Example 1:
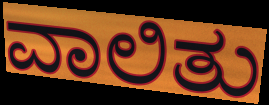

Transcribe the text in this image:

ವಾಲಿತು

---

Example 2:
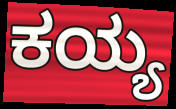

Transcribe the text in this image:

ಕಯ್ಯ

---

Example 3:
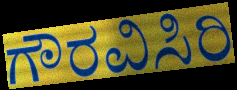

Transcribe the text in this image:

ಗೌರವಿಸಿರಿ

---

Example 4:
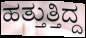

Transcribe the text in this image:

ಹತ್ತುತ್ತಿದ್ದ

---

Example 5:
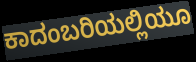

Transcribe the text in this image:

ಕಾದಂಬರಿಯಲ್ಲಿಯೂ